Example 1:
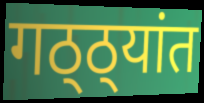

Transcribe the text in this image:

गठ्ठ्यांत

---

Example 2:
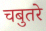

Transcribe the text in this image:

चबुतरे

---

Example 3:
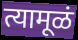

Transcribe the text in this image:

त्यामूळं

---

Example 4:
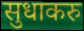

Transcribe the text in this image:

सुधाकरु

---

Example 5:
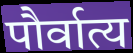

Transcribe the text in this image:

पौर्वात्य